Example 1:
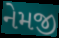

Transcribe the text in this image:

નેમજી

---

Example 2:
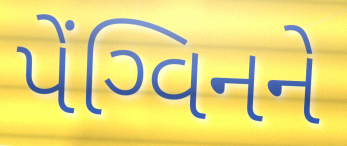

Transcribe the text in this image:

પેંગ્વિનને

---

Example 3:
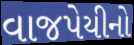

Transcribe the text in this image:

વાજપેયીનો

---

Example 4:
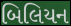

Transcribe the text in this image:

બિલિયન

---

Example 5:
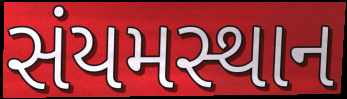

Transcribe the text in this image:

સંયમસ્થાન